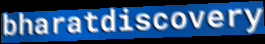
bharatdiscovery